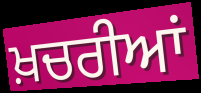
ਖ਼ਚਰੀਆਂ